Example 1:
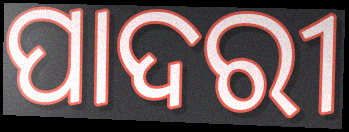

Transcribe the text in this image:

ପାଦରୀ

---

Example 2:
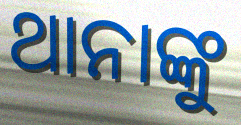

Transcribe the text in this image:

ଥାନାଙ୍କୁ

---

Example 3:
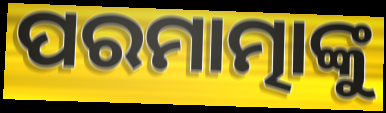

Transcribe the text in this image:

ପରମାତ୍ମାଙ୍କୁ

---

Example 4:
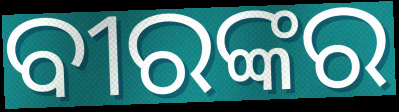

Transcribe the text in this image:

ବୀରଙ୍କର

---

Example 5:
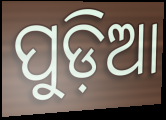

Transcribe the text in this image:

ପୁଡ଼ିଆ